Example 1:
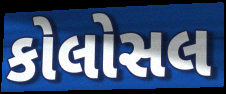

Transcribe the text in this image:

કોલોસલ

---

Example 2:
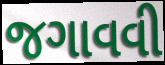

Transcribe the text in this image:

જગાવવી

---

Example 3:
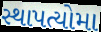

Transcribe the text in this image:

સ્થાપત્યોમા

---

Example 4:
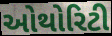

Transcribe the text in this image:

ઓથોરિટી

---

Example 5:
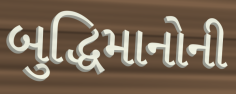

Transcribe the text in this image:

બુદ્ધિમાનોની